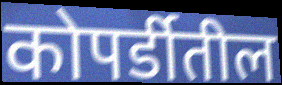
कोपर्डीतील